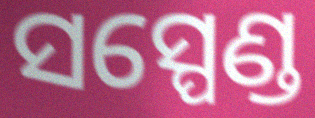
ସସ୍ପେଣ୍ଡ